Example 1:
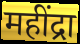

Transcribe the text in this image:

महींद्रा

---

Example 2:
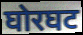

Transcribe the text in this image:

घोरघट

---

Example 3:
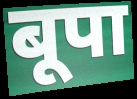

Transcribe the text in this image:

बूपा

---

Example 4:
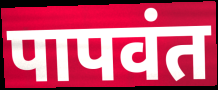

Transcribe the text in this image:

पापवंत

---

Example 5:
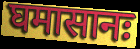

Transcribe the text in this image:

घमासानः